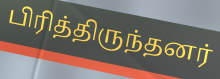
பிரித்திருந்தனர்